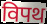
विपथ